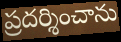
ప్రదర్శించాను